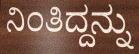
ನಿಂತಿದ್ದನ್ನು